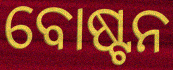
ବୋଷ୍ଟନ